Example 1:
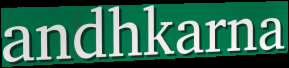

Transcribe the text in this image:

andhkarna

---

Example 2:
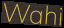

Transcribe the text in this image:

Wahi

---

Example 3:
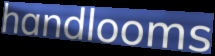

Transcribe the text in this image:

handlooms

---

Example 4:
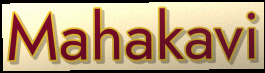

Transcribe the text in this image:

Mahakavi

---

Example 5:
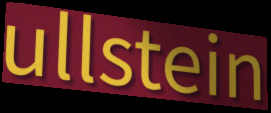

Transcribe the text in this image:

ullstein